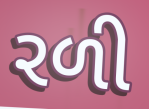
રળી